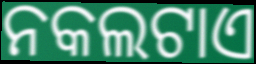
ନକଲଟାଏ